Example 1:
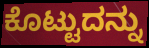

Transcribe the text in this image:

ಕೊಟ್ಟುದನ್ನು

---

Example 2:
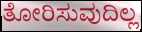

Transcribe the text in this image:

ತೋರಿಸುವುದಿಲ್ಲ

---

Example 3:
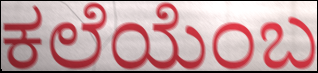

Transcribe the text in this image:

ಕಲೆಯೆಂಬ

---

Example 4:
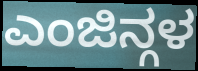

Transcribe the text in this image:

ಎಂಜಿನ್ಗಳ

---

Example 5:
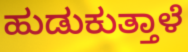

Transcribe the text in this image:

ಹುಡುಕುತ್ತಾಳೆ